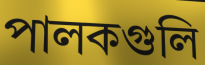
পালকগুলি